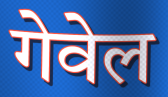
गेवेल